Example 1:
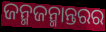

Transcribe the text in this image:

ଜନ୍ମଜନ୍ମାନ୍ତରର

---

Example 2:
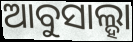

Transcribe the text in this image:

ଆବୁସାଲ୍ହା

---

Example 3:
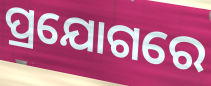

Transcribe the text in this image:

ପ୍ରଯୋଗରେ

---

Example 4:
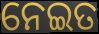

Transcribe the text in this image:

ନେଇତ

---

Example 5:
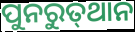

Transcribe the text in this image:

ପୁନରୁତ୍‍ଥାନ